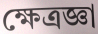
ক্ষেত্রজ্ঞা